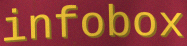
infobox